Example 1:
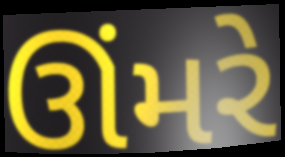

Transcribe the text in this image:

ઊંમરે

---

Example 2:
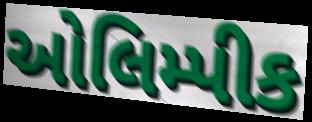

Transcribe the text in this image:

ઓલિમ્પીક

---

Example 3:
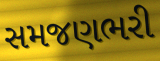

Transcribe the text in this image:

સમજણભરી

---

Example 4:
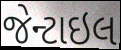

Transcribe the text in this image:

જેન્ટાઇલ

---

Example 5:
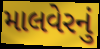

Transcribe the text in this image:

માલવેરનું